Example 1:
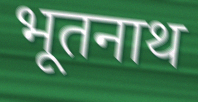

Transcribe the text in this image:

भूतनाथ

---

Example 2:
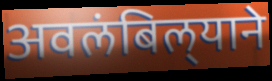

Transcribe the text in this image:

अवलंबिल्याने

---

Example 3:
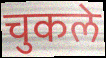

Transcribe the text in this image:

चुकले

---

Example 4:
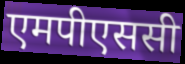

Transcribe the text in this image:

एमपीएससी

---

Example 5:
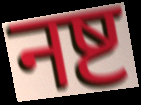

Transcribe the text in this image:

नष्ट